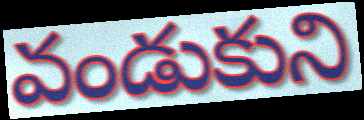
వండుకుని